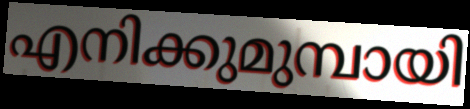
എനിക്കുമുമ്പായി